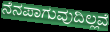
ನೆನಪಾಗುವುದಿಲ್ಲವೆ